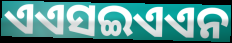
ଏଏସଇଏଏନ